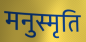
मनुस्मृति